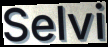
Selvi